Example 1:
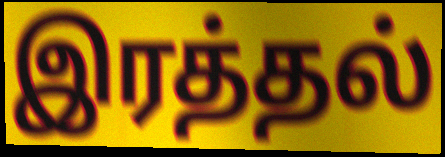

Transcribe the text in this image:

இரத்தல்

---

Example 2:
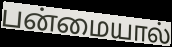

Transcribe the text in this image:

பன்மையால்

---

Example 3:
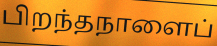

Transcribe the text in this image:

பிறந்தநாளைப்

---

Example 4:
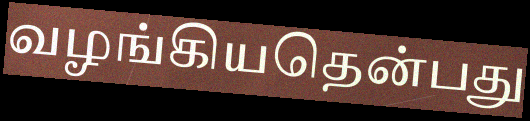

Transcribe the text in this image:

வழங்கியதென்பது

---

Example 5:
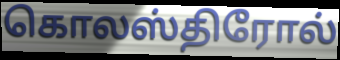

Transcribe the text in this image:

கொலஸ்திரோல்